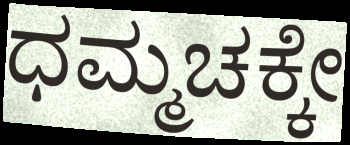
ಧಮ್ಮಚಕ್ಕೇ